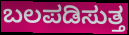
ಬಲಪಡಿಸುತ್ತ